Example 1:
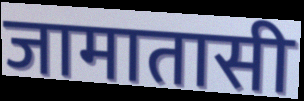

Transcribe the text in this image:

जामातासी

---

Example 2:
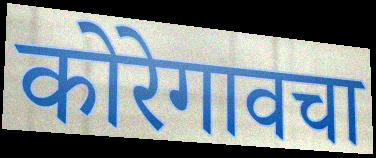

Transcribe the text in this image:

कोरेगावचा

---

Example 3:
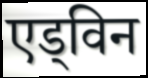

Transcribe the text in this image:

एड्विन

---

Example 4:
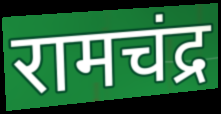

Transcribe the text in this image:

रामचंद्र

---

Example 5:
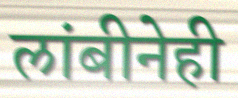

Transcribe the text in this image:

लांबीनेही